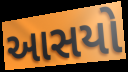
આસયો